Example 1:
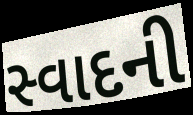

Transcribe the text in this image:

સ્વાદની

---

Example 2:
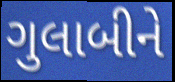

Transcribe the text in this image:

ગુલાબીને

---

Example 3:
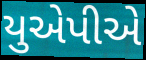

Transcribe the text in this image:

યુએપીએ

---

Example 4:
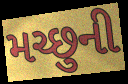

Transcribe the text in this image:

મચ્છુની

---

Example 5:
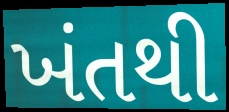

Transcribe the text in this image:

ખંતથી